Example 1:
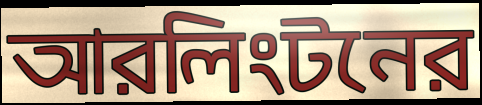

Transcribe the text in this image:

আরলিংটনের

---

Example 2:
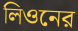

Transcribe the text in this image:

লিওনের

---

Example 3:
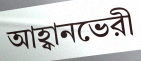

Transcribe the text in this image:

আহ্বানভেরী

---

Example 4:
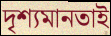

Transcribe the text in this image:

দৃশ্যমানতাই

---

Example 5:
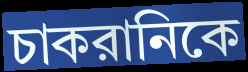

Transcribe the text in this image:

চাকরানিকে